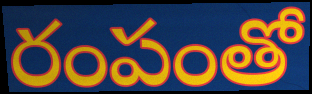
రంపంతో